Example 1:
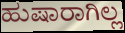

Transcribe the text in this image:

ಹುಷಾರಾಗಿಲ್ಲ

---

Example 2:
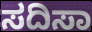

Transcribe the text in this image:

ಸದಿಸಾ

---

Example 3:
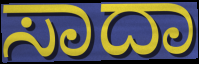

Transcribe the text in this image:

ಸಾದಾ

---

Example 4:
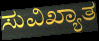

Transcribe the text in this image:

ಸುವಿಖ್ಯಾತ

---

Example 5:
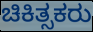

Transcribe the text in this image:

ಚಿಕಿತ್ಸಕರು